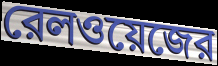
রেলওয়েজের